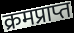
क्रमप्राप्‍त